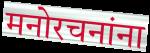
मनोरचनांना